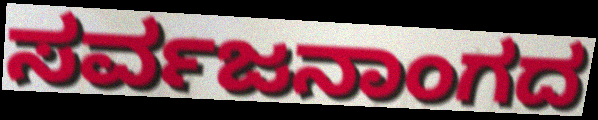
ಸರ್ವಜನಾಂಗದ